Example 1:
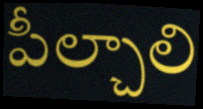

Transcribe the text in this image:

పీల్చాలి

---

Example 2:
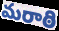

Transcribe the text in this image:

మరాఠి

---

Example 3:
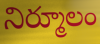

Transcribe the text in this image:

నిర్మూలం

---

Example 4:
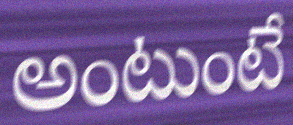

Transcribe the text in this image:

అంటుంటే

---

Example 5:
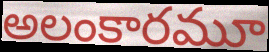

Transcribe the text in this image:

అలంకారమూ